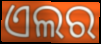
ଏଲର